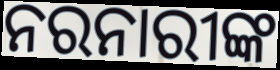
ନରନାରୀଙ୍କ